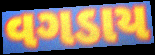
વગડાય